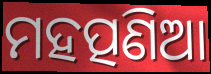
ମହତ୍ପଣିଆ